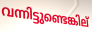
വന്നിട്ടുണ്ടെങ്കില്